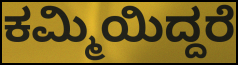
ಕಮ್ಮಿಯಿದ್ದರೆ